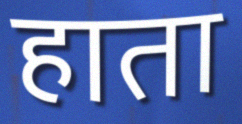
हाता